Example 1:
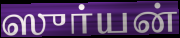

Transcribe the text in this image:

ஸுர்யன்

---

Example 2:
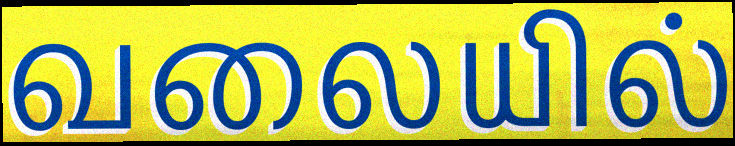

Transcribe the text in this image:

வலையில்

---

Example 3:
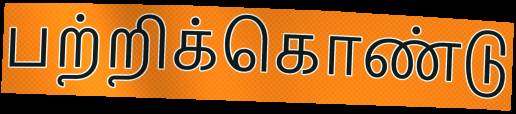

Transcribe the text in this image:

பற்றிக்கொண்டு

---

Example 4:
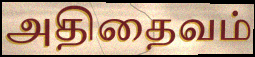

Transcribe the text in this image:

அதிதைவம்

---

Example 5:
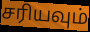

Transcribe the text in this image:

சரியவும்